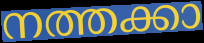
നത്തക്കാ